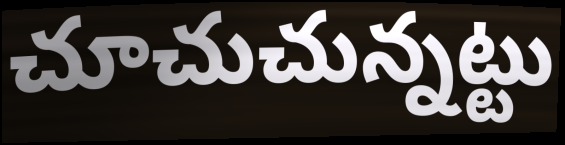
చూచుచున్నట్టు